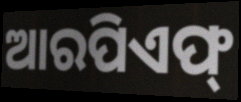
ଆରପିଏଫ୍